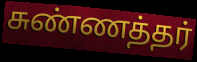
சுண்ணத்தர்